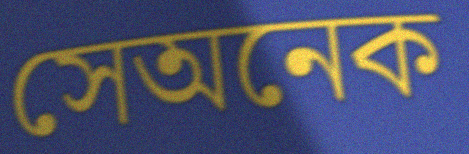
সেঅনেক